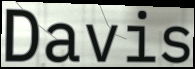
Davis